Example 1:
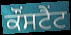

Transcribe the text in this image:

ਕੌਂਸਟੈਂਟ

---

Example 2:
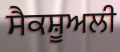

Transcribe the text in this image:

ਸੈਕਸ਼ੂਅਲੀ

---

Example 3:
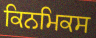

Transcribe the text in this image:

ਕਿਨਮਿਕਸ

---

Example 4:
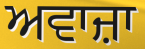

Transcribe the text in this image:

ਅਵਾਜ਼ਾ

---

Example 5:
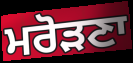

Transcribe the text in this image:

ਮਰੋੜਣਾ